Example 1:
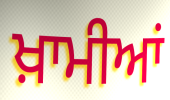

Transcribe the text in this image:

ਖ਼ਾਮੀਆਂ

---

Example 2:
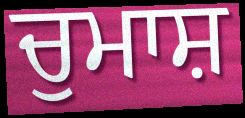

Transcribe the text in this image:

ਚੁਮਾਸ਼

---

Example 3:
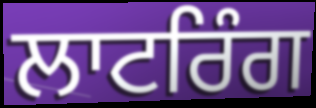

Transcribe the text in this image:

ਲਾਟਰਿੰਗ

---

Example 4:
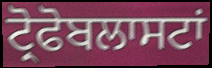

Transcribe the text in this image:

ਟ੍ਰੋਫੋਬਲਾਸਟਾਂ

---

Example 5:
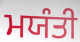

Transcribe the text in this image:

ਮਯੰਤੀ